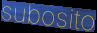
subosito